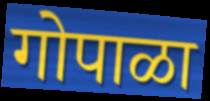
गोपाळा